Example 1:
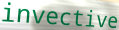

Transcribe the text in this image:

invective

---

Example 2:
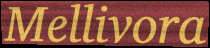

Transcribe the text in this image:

Mellivora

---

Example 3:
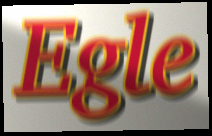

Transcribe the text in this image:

Egle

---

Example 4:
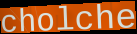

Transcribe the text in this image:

cholche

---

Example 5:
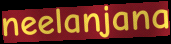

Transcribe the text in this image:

neelanjana